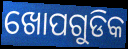
ଖୋପଗୁଡିକ